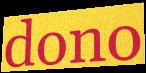
dono